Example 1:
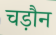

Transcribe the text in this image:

चड़ौन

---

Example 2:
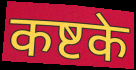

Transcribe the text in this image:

कष्टके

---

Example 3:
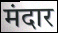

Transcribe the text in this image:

मंदार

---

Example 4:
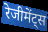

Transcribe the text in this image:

रेजीमेंट्स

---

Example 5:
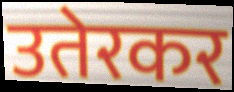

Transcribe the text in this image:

उतेरकर